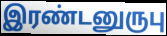
இரண்டனுருபு